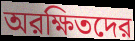
অরক্ষিতদের